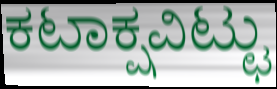
ಕಟಾಕ್ಷವಿಟ್ಟು